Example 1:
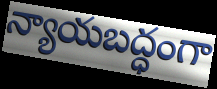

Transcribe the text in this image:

న్యాయబద్ధంగా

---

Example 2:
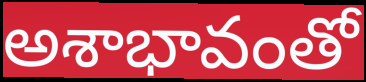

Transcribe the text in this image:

అశాభావంతో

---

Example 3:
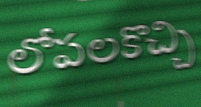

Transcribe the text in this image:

లోపలకొచ్చి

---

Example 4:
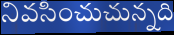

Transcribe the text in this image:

నివసించుచున్నది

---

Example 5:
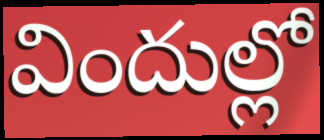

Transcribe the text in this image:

విందుల్లో